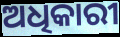
ଅଧିକାରୀ